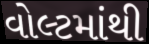
વોલ્ટમાંથી